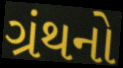
ગ્રંથનો